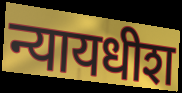
न्यायधीश